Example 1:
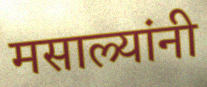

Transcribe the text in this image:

मसाल्यांनी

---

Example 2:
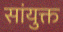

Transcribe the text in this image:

सांयुक्त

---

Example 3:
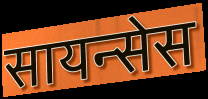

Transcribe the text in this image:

सायन्सेस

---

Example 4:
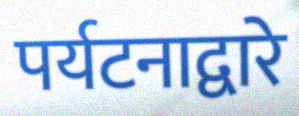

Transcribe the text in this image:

पर्यटनाद्वारे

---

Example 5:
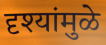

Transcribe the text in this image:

दृश्यांमुळे